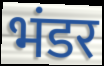
भंडर